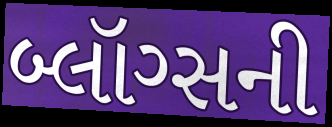
બ્લૉગ્સની